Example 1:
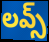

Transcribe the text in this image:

లవ్స్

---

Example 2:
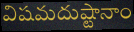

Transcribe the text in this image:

విషమదుష్టానాం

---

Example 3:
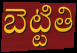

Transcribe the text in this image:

బెట్టితి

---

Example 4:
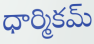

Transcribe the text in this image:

ధార్మికమ్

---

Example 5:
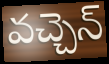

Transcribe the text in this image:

వచ్చెన్